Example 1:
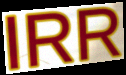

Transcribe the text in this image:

IRR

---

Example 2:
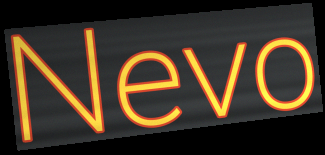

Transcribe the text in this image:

Nevo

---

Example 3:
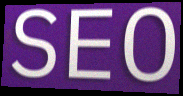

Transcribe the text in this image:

SEO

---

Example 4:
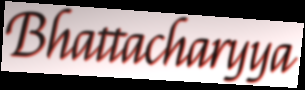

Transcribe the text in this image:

Bhattacharyya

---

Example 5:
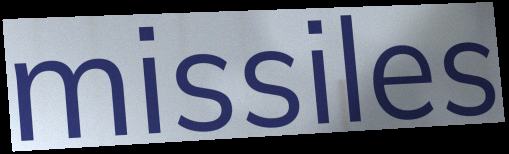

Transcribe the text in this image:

missiles